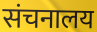
संचनालय